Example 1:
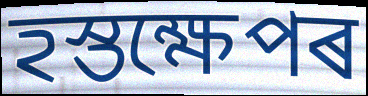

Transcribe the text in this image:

হস্তক্ষেপৰ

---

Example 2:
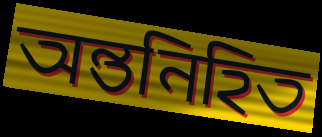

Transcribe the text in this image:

অন্তনিহিত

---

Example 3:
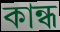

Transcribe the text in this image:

কান্ধ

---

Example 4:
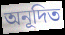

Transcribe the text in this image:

অনূদিত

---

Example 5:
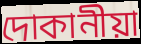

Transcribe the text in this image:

দোকানীয়া